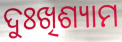
ଦୁଃଖିଶ୍ୟାମ